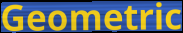
Geometric